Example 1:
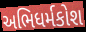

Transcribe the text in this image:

અભિધર્મકોશ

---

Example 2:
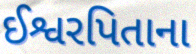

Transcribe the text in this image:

ઈશ્વરપિતાના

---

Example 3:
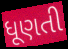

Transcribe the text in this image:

ધૂણતી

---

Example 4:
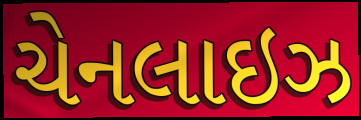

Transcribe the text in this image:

ચેનલાઇઝ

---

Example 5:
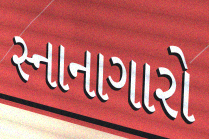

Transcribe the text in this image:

સ્નાનાગારો